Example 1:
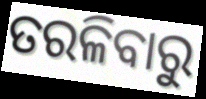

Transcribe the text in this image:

ତରଳିବାରୁ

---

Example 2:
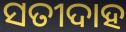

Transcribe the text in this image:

ସତୀଦାହ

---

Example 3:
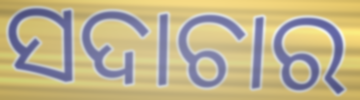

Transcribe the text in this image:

ସଦାଚାର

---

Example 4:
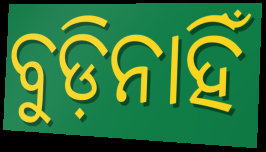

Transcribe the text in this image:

ବୁଡ଼ିନାହିଁ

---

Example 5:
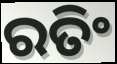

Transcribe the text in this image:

ରତିଂ